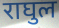
राघुल